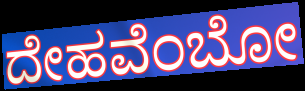
ದೇಹವೆಂಬೋ